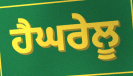
ਹੈਘਰੇਲੂ